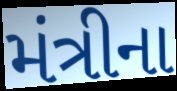
મંત્રીના